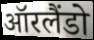
ऑरलैंडो